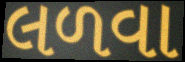
લળવા